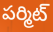
పర్మిట్